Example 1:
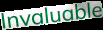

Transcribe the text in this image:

Invaluable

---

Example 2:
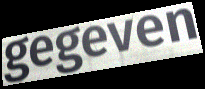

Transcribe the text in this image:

gegeven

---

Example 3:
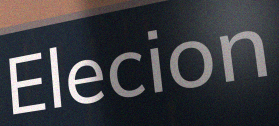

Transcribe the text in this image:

Elecion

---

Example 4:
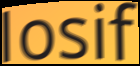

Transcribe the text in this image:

Iosif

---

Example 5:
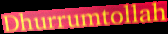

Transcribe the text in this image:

Dhurrumtollah